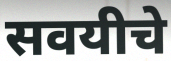
सवयीचे